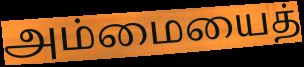
அம்மையைத்